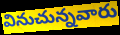
వినుచున్నవారు